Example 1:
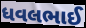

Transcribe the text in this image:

ધવલભાઈ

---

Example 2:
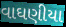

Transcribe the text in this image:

વાઘણીયા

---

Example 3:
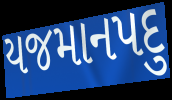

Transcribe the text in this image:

યજમાનપદુ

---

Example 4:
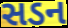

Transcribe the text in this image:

સડન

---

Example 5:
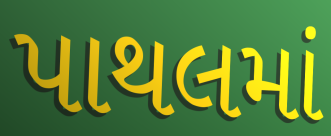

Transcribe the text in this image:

પાથલમાં